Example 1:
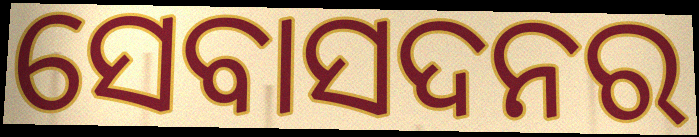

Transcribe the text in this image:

ସେବାସଦନର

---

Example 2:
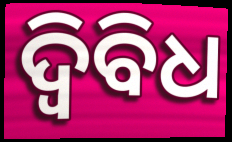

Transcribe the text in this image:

ଦ୍ଵିବିଧ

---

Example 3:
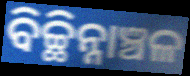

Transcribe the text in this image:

ବିଚ୍ଛିନ୍ନାଞ୍ଚଳ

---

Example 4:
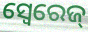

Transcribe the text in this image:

ସ୍ୱେରେଜ୍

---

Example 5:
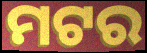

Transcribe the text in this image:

ମଟର